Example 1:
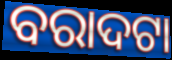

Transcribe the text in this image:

ବରାଦଟା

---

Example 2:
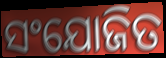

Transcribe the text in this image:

ସଂଯୋଜିତ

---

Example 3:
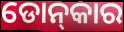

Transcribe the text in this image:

ଡୋନ୍‍କାର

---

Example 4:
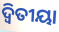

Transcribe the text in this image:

ଦ୍ବିତୀୟା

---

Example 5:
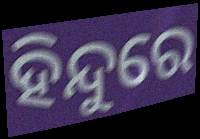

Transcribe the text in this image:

ହିନ୍ଦୁରେ